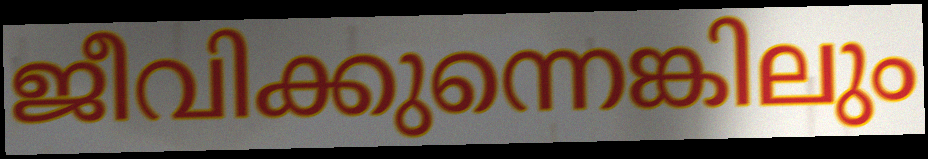
ജീവിക്കുന്നെങ്കിലും